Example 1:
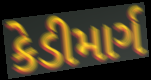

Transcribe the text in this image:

કેડીમાર્ગ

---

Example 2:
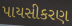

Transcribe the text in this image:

પાયસીકરણ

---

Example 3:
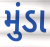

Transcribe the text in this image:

મુંડા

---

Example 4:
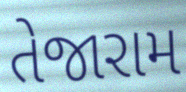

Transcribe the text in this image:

તેજારામ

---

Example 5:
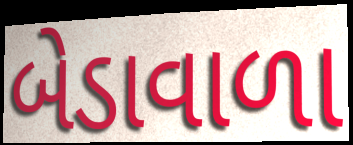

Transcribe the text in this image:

બેડાવાળા